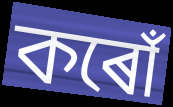
কৰোঁ